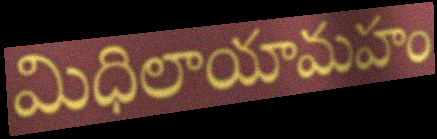
మిధిలాయామహం